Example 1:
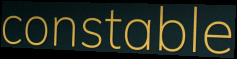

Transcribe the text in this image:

constable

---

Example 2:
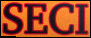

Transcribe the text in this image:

SECI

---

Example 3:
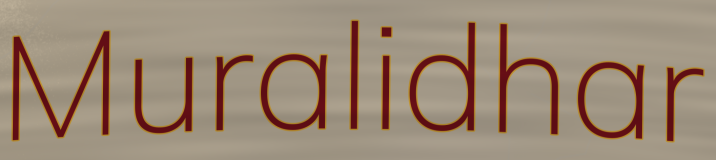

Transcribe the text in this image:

Muralidhar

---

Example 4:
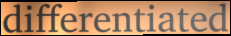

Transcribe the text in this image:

differentiated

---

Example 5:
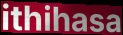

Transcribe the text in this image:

ithihasa